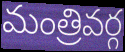
మంత్రివర్గ